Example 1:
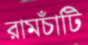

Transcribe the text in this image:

রামচাঁটি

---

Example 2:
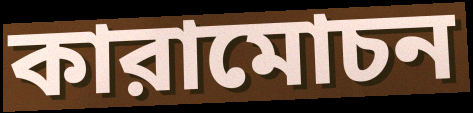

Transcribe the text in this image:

কারামোচন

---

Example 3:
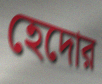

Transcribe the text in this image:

হেদোর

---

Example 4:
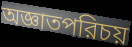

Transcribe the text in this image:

অজ্ঞাতপরিচয়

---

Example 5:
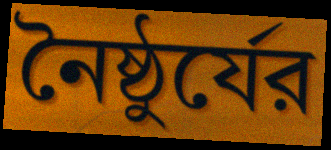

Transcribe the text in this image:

নৈষ্ঠুর্যের